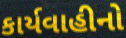
કાર્યવાહીનો